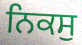
ਨਿਕਸੁ